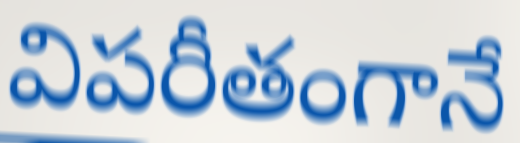
విపరీతంగానే